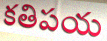
కతిపయ